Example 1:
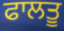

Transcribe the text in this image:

ਫਾਲਤੂ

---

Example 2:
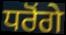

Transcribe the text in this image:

ਧਰੋਂਗੇ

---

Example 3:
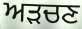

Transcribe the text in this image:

ਅੜਚਣ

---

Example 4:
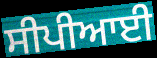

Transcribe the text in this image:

ਸੀਪੀਆਈ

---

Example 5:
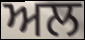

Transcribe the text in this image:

ਅਲ